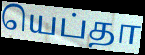
யெப்தா